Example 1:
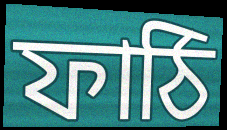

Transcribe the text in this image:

ফাঠি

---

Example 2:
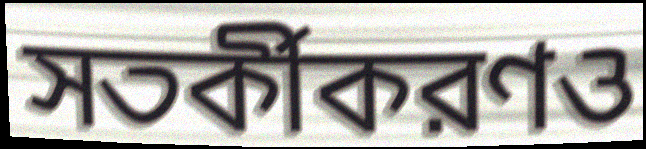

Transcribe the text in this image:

সতর্কীকরণও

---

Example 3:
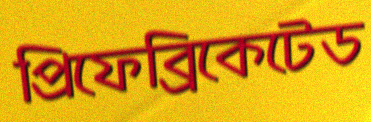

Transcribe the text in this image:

প্রিফেব্রিকেটেড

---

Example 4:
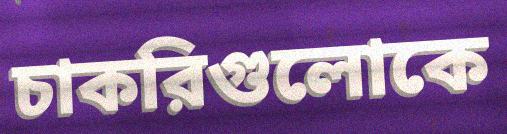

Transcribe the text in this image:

চাকরিগুলোকে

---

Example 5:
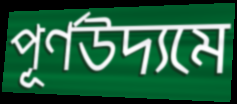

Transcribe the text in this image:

পূর্ণউদ্যমে